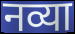
नव्‍या